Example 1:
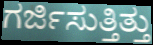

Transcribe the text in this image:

ಗರ್ಜಿಸುತ್ತಿತ್ತು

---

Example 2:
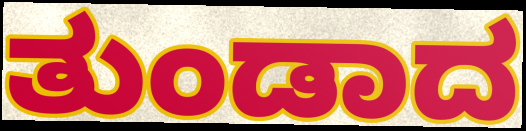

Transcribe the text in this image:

ತುಂಡಾದ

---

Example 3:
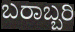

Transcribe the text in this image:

ಬರಾಬ್ಬರಿ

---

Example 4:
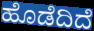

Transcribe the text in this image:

ಹೊಡೆದಿದೆ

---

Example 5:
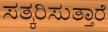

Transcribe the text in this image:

ಸತ್ಕರಿಸುತ್ತಾರೆ